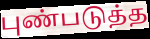
புண்படுத்த